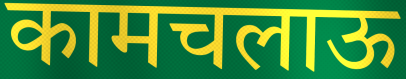
कामचलाऊ